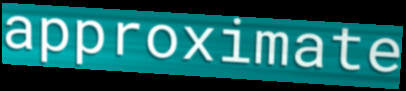
approximate